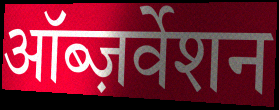
ऑब्ज़र्वेशन